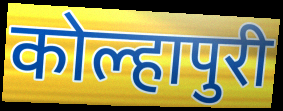
कोल्हापुरी